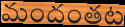
మందంతట